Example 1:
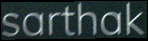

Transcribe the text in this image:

sarthak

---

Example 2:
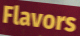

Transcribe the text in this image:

Flavors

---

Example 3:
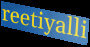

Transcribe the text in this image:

reetiyalli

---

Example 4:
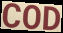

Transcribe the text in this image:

COD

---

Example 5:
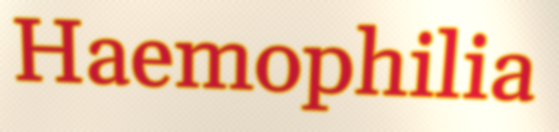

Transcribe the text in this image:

Haemophilia